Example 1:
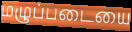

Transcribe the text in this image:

மழுப்படையை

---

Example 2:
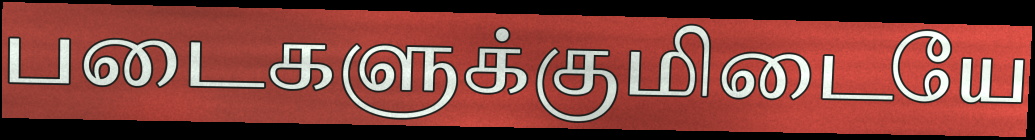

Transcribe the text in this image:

படைகளுக்குமிடையே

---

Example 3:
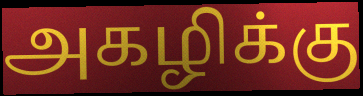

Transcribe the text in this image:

அகழிக்கு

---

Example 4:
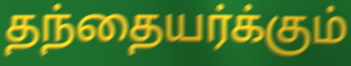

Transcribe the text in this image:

தந்தையர்க்கும்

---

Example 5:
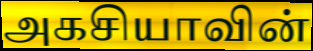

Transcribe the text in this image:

அகசியாவின்